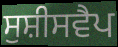
ਸੁਸ਼ੀਸਵੈਪ